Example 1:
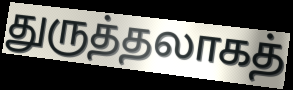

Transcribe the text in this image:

துருத்தலாகத்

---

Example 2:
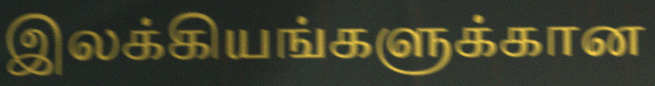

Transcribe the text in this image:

இலக்கியங்களுக்கான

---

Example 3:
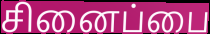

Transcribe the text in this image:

சினைப்பை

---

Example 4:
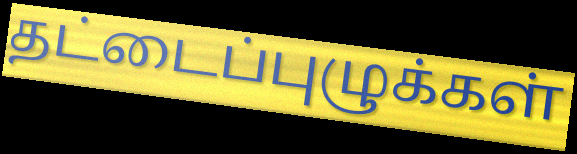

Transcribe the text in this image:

தட்டைப்புழுக்கள்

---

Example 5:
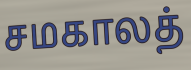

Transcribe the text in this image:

சமகாலத்